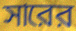
সারের